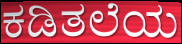
ಕಡಿತಲೆಯ